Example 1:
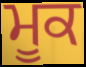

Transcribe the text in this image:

ਮੂਕ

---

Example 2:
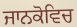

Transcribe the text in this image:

ਜਾਨਕੋਵਿਚ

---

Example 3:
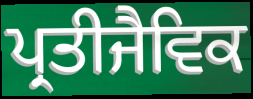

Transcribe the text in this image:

ਪ੍ਰਤੀਜੈਵਿਕ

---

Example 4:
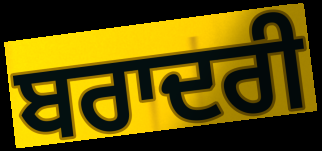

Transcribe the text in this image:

ਬਰਾਦਰੀ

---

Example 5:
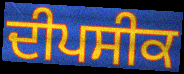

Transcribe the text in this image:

ਦੀਪਸੀਕ